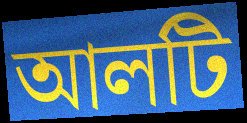
আলটি